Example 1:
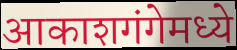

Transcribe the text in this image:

आकाशगंगेमध्ये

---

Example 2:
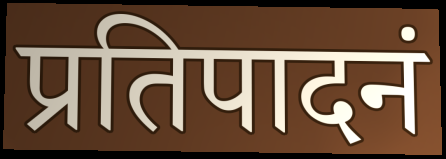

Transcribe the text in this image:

प्रतिपादनं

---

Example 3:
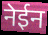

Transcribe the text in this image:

नेईन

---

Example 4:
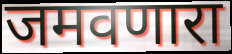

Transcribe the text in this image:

जमवणारा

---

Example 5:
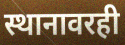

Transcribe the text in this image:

स्थानावरही